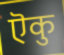
ऎकु